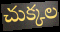
చుక్కల